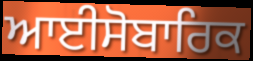
ਆਈਸੋਬਾਰਿਕ